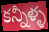
కన్నీళ్ళ